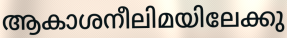
ആകാശനീലിമയിലേക്കു